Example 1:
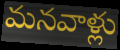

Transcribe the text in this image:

మనవాళ్లు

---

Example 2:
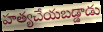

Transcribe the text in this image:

హత్యచేయబడ్డాడు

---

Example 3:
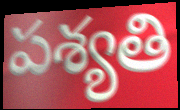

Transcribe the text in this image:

పశ్యతి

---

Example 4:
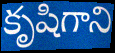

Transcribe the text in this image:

కృషిగాని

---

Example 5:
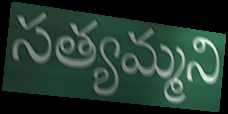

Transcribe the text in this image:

సత్యమ్మని